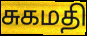
சுகமதி